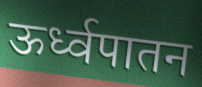
ऊर्ध्वपातन